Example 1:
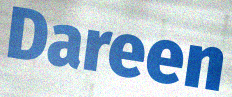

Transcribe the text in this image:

Dareen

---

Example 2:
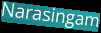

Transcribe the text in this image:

Narasingam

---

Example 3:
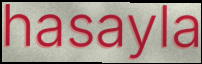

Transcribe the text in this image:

hasayla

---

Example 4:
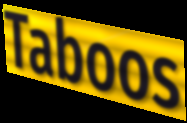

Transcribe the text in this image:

Taboos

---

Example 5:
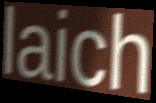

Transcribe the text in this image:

laich